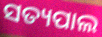
ସତ୍ୟପାଲ